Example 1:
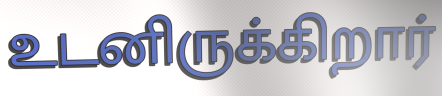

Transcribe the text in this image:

உடனிருக்கிறார்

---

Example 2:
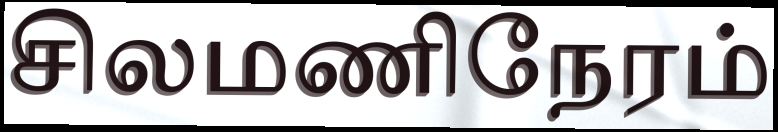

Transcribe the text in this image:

சிலமணிநேரம்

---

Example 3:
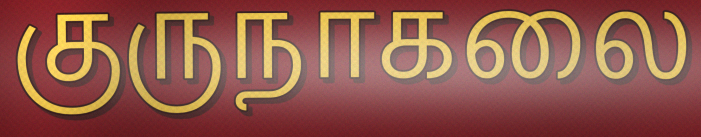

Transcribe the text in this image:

குருநாகலை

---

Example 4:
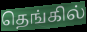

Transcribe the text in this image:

தெங்கில்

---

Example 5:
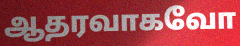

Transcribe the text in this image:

ஆதரவாகவோ